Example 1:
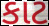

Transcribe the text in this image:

કાટ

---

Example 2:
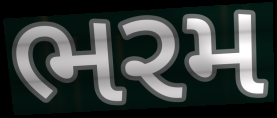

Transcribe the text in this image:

ભરમ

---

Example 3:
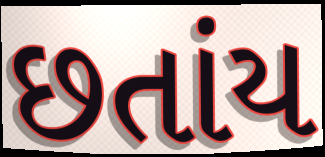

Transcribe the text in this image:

છતાંય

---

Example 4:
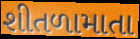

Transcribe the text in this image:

શીતળામાતા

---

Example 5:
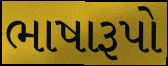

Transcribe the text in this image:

ભાષારૂપો